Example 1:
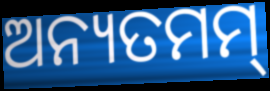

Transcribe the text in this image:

ଅନ୍ୟତମମ୍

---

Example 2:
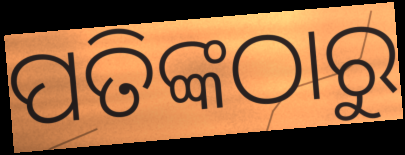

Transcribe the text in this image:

ପତିଙ୍କଠାରୁ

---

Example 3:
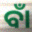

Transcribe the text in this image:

ବାଁ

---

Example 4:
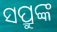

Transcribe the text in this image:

ସପ୍ରୁଙ୍କ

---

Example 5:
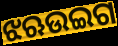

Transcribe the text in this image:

ଝଋଉଇଗ